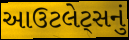
આઉટલેટ્સનું